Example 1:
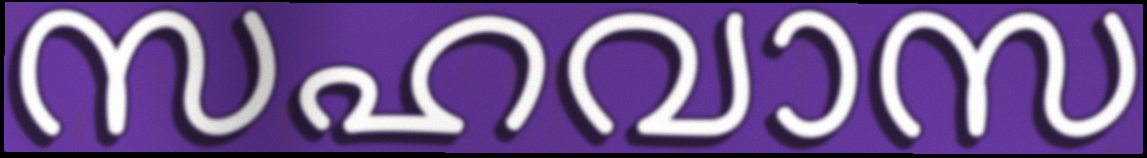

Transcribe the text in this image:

സഹവാസ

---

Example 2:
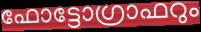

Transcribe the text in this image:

ഫോട്ടോഗ്രാഫറും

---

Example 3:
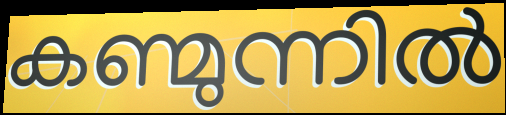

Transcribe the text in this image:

കണ്മുന്നിൽ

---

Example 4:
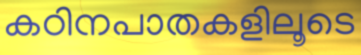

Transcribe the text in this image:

കഠിനപാതകളിലൂടെ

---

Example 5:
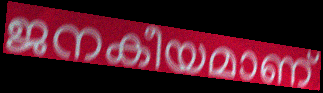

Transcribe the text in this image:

ജനകീയമാണ്